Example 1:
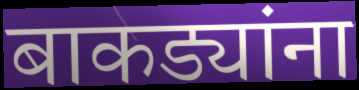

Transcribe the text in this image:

बाकड्यांना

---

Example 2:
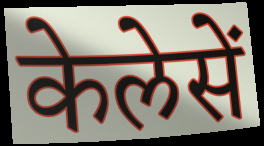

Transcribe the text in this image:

केलेसें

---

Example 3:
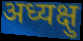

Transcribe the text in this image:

अध्यक्षु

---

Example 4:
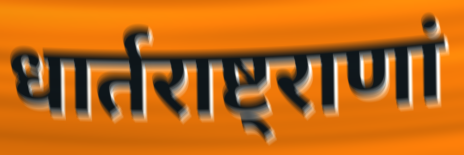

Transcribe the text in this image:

धार्तराष्ट्राणां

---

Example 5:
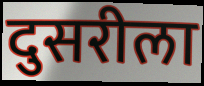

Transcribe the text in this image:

दुसरीला